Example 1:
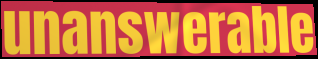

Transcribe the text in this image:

unanswerable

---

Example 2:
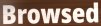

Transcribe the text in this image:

Browsed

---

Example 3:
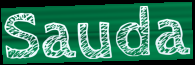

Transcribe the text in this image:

Sauda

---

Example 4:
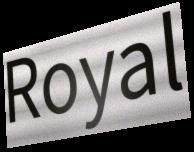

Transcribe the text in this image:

Royal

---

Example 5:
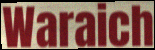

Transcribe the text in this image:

Waraich